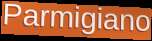
Parmigiano